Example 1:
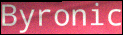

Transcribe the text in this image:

Byronic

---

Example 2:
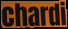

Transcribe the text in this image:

chardi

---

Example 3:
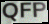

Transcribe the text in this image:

QFP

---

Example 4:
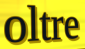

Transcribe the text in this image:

oltre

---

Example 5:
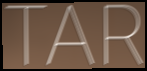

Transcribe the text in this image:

TAR